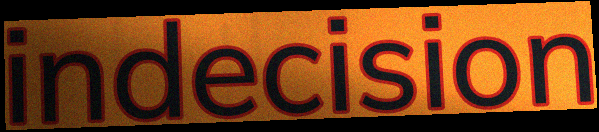
indecision